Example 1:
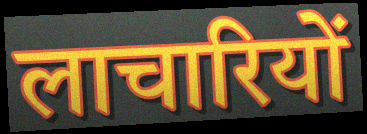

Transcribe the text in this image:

लाचारियों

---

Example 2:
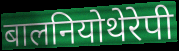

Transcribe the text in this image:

बालनियोथेरेपी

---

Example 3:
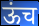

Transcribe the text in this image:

ऊंच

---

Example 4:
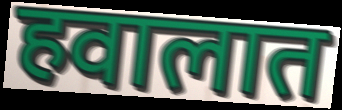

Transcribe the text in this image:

हवालात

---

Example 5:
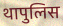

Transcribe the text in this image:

थापुलिस